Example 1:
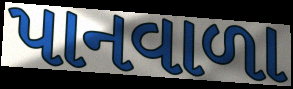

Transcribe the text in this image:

પાનવાળા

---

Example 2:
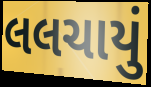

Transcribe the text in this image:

લલચાયું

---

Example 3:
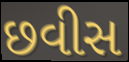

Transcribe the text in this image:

છવીસ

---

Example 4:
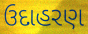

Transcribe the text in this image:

ઉદાહરણ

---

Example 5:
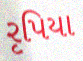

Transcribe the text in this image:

રૃપિયા